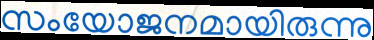
സംയോജനമായിരുന്നു